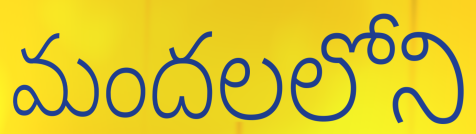
మందలలోని